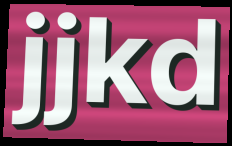
jjkd